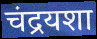
चंद्रयशा